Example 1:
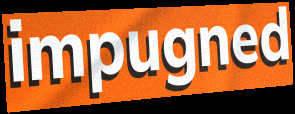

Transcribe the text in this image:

impugned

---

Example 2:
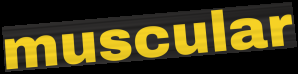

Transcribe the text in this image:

muscular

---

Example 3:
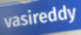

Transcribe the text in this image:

vasireddy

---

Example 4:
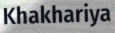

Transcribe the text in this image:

Khakhariya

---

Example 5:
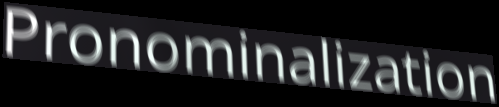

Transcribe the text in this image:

Pronominalization